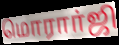
மொரார்ஜி